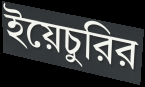
ইয়েচুরির